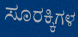
ಸೂರಕ್ಕಿಗಳ